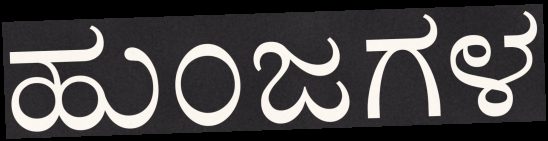
ಹುಂಜಗಳ